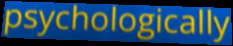
psychologically